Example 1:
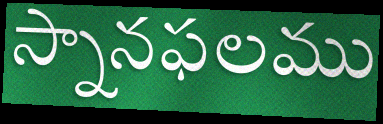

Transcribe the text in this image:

స్నానఫలము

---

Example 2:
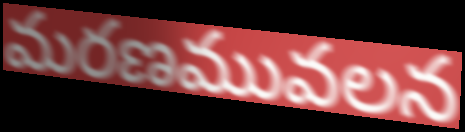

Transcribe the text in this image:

మరణమువలన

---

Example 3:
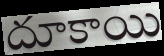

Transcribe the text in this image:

దూకాయి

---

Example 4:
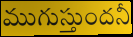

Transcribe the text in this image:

ముగుస్తుందనీ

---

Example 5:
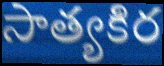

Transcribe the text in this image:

సాత్యకిర